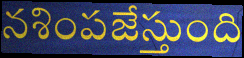
నశింపజేస్తుంది